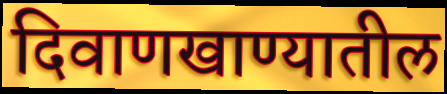
दिवाणखाण्यातील